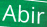
Abir